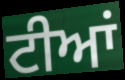
ਟੀਆਂ